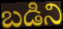
బడిని